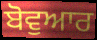
ਬੋਵੁਆਰ